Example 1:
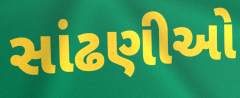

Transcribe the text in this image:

સાંઢણીઓ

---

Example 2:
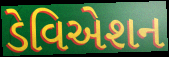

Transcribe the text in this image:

ડેવિએશન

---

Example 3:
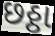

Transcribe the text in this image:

છઠ્ઠા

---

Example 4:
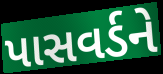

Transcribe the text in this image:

પાસવર્ડને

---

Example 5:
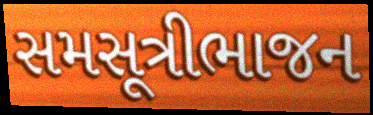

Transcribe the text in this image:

સમસૂત્રીભાજન